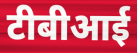
टीबीआई